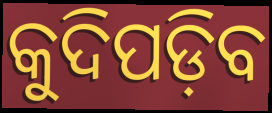
କୁଦିପଡ଼ିବ